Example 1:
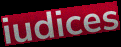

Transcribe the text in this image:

iudices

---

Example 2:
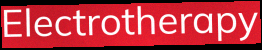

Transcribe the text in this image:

Electrotherapy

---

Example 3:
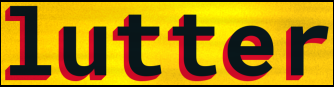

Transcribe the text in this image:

lutter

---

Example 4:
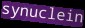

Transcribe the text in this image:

synuclein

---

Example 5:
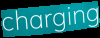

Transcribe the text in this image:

charging